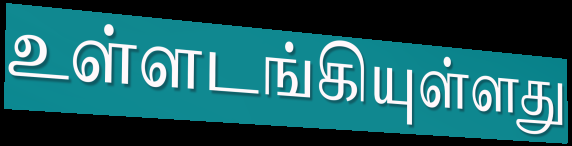
உள்ளடங்கியுள்ளது